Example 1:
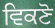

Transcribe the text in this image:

ਵਿਕਣੋ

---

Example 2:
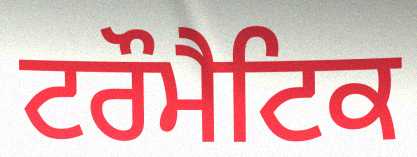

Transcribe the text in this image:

ਟਰੌਮੈਟਿਕ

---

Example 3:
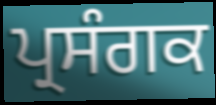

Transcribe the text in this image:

ਪ੍ਰਸੰਗਕ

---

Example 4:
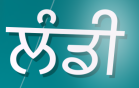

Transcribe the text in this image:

ਲੰਡੀ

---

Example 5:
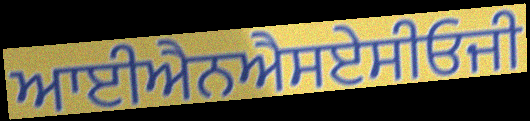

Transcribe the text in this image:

ਆਈਐਨਐਸਏਸੀਓਜੀ